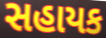
સહાયક